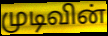
முடிவின்